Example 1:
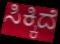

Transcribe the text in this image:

ಸಿಕ್ಕಿದೆ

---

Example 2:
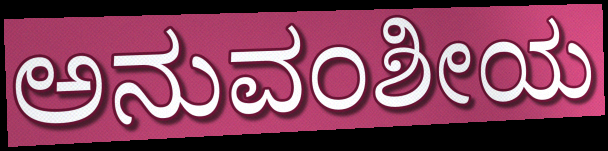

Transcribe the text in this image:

ಅನುವಂಶೀಯ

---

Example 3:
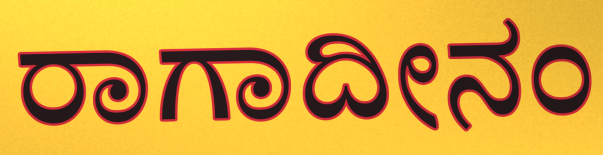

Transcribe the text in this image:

ರಾಗಾದೀನಂ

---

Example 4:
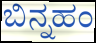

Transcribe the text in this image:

ಬಿನ್ನಹಂ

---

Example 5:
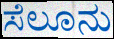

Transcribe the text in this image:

ಸೆಲೂನು